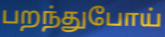
பறந்துபோய்